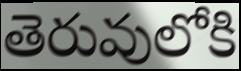
తెరువులోకి